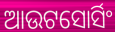
ଆଉଟସୋର୍ସିଂ